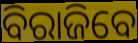
ବିରାଜିବେ